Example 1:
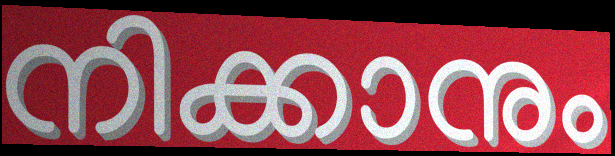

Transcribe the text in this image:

നിക്കാനും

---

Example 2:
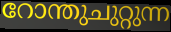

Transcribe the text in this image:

റോന്തുചുറ്റുന്ന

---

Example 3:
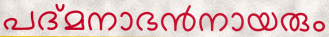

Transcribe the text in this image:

പദ്മനാഭൻനായരും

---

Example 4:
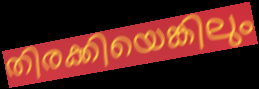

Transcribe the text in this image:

തിരക്കിയെങ്കിലും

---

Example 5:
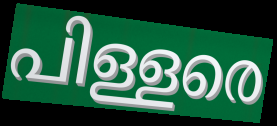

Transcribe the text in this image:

പിള്ളരെ